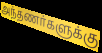
அந்தணர்களுக்கு